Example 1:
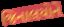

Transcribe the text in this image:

જિનાલયોને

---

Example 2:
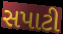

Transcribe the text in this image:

સપાટી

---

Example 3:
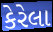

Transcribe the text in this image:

કેરેલા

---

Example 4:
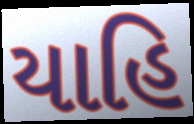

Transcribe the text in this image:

યાહિ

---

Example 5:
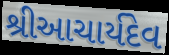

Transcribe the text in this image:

શ્રીઆચાર્યદેવ